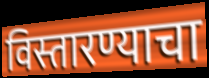
विस्तारण्याचा